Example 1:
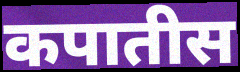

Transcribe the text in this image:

कपातीस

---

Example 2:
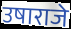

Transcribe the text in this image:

उषाराजे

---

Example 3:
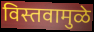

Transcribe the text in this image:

विस्तवामुळे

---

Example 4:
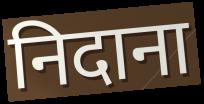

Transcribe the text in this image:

निदाना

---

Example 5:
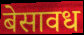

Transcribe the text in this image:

बेसावध